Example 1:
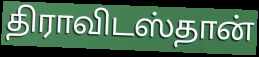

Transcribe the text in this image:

திராவிடஸ்தான்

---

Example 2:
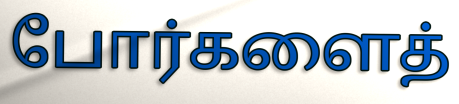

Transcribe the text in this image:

போர்களைத்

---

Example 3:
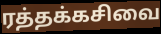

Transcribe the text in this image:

ரத்தக்கசிவை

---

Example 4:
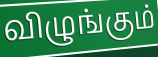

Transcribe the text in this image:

விழுங்கும்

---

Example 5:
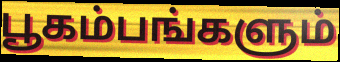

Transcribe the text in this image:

பூகம்பங்களும்